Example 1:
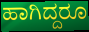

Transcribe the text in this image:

ಹಾಗಿದ್ದರೂ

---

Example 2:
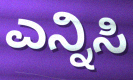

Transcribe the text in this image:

ಎನ್ನಿಸಿ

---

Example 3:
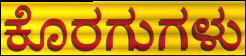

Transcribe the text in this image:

ಕೊರಗುಗಳು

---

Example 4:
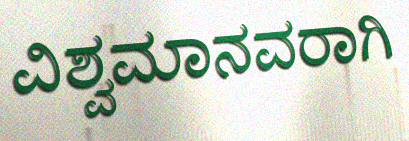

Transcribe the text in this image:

ವಿಶ್ವಮಾನವರಾಗಿ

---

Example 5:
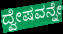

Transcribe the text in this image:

ದ್ವೇಷವನ್ನೇ